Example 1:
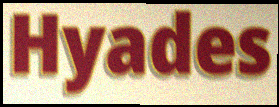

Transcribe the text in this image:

Hyades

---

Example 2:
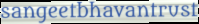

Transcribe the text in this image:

sangeetbhavantrust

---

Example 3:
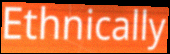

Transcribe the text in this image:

Ethnically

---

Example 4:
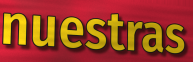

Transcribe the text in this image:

nuestras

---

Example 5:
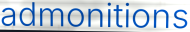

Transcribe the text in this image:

admonitions